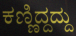
ಕಣ್ಣಿದ್ದದ್ದು